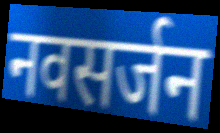
नवसर्जन